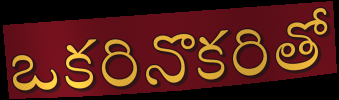
ఒకరినొకరితో